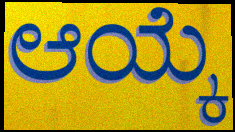
ಆಯ್ಕೆ